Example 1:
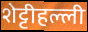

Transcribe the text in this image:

शेट्टीहल्ली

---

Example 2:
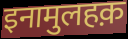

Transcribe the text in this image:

इनामुलहक़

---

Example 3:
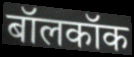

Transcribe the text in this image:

बॉलकॉक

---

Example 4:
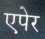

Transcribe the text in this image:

एपेर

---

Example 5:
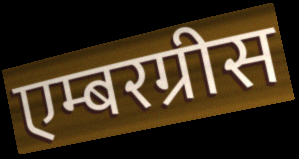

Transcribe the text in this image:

एम्बरग्रीस